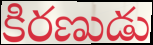
కిరణుడు